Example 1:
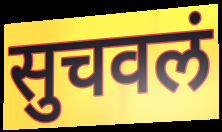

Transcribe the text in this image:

सुचवलं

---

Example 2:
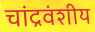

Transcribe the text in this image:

चांद्रवंशीय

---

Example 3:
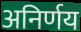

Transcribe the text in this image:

अनिर्णय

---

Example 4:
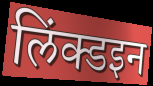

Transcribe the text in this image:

लिंक्डइन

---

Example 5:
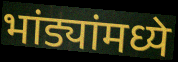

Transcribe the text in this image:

भांड्यांमध्ये